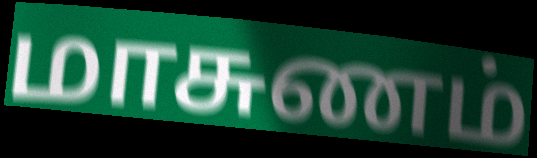
மாசுணம்